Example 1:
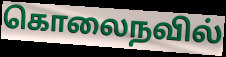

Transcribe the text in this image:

கொலைநவில்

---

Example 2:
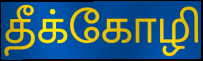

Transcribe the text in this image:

தீக்கோழி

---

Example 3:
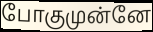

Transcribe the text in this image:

போகுமுன்னே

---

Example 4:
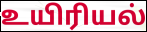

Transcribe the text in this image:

உயிரியல்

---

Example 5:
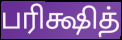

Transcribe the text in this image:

பரிக்ஷித்